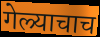
गेल्याचाच